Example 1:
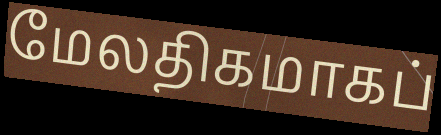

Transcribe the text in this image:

மேலதிகமாகப்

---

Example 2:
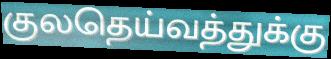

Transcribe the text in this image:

குலதெய்வத்துக்கு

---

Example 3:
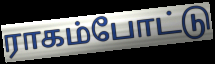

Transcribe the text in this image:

ராகம்போட்டு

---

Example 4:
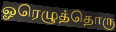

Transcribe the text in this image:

ஓரெழுத்தொரு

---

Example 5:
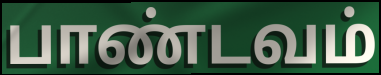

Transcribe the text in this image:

பாண்டவம்